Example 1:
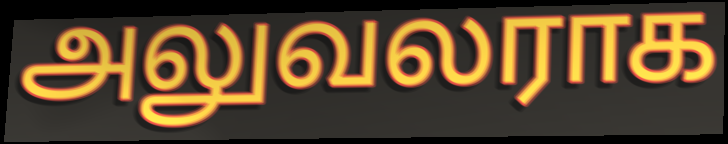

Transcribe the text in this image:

அலுவலராக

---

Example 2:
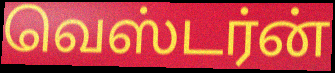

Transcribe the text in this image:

வெஸ்டர்ன்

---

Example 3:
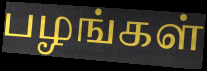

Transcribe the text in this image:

பழங்கள்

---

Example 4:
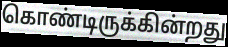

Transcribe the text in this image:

கொண்டிருக்கின்றது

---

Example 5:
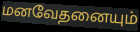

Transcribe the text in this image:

மனவேதனையும்